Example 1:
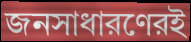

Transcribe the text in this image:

জনসাধারণেরই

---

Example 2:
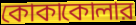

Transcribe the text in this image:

কোকাকোলার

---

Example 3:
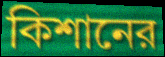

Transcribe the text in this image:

কিশানের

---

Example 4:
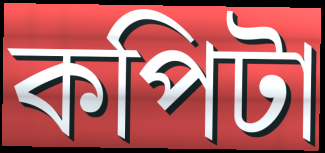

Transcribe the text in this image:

কপিটা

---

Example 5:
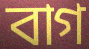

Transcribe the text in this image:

বাগ